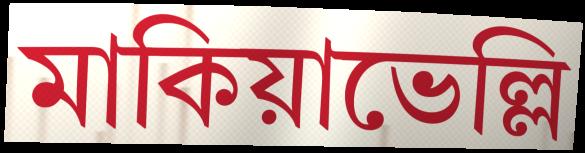
মাকিয়াভেল্লি